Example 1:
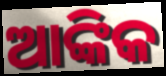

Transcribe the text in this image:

ଆଙ୍କିକ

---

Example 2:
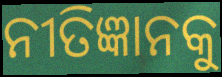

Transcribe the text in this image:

ନୀତିଜ୍ଞାନକୁ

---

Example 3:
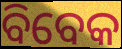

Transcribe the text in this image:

ବିବେକ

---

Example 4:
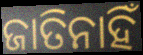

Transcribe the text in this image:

ଜାତିନାହିଁ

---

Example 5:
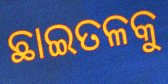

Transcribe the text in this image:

ଛାଇତଳକୁ